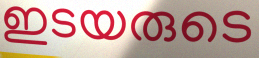
ഇടയരുടെ